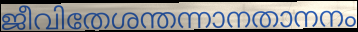
ജീവിതേശന്തന്നാനതാനനം